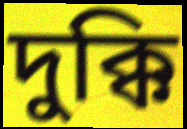
দুক্কি